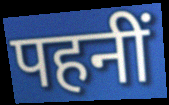
पहनीं